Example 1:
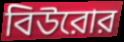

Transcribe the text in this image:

বিউরোর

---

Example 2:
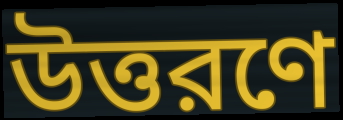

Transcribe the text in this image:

উত্তরণে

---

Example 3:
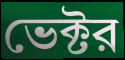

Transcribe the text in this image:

ভেক্টর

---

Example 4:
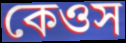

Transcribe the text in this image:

কেওস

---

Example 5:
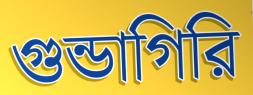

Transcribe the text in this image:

গুন্ডাগিরি